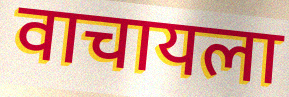
वाचायला